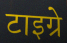
टाइग्रे